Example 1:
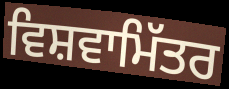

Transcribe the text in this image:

ਵਿਸ਼ਵਾਮਿੱਤਰ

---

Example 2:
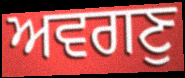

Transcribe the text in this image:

ਅਵਗਣੁ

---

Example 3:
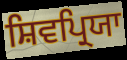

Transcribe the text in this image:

ਸ਼ਿਵਪ੍ਰਿਯਾ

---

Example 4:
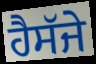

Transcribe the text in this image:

ਹੈਸੱਜੇ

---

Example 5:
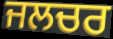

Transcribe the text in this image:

ਜਲਚਰ